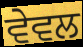
ਵੇਵਲ